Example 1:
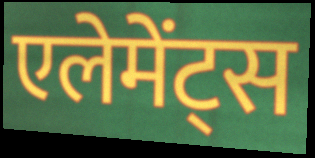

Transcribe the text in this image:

एलेमेंट्स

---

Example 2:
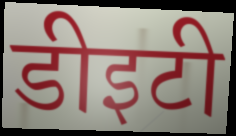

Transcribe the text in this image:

डीइटी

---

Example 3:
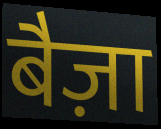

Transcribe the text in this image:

बैज़ा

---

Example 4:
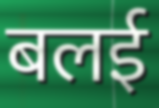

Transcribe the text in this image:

बलई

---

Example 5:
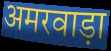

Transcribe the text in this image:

अमरवाड़ा